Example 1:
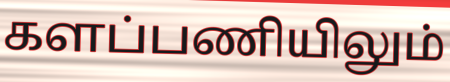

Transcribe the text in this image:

களப்பணியிலும்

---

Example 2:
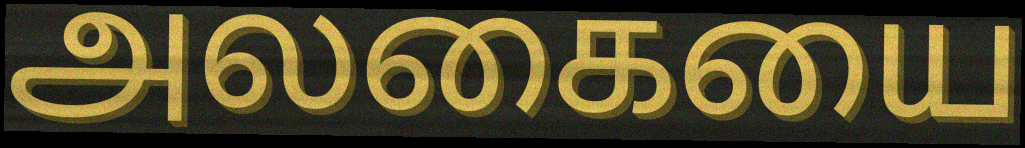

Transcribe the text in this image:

அலகையை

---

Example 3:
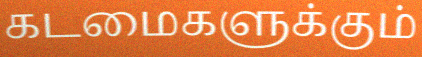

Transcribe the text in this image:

கடமைகளுக்கும்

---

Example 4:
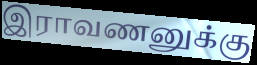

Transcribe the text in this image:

இராவணனுக்கு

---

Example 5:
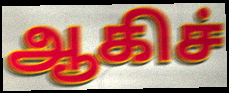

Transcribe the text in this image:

ஆகிச்